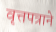
वृत्तपत्राने